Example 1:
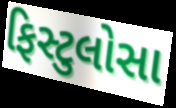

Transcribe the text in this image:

ફિસ્ટુલોસા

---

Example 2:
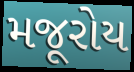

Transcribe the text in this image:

મજૂરોય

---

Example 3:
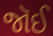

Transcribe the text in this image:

જૉઈ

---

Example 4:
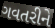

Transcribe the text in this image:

ગવતરીને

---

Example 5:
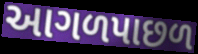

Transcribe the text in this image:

આગળપાછળ